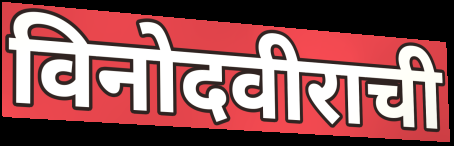
विनोदवीराची